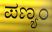
ಪಣ್ಯಂ